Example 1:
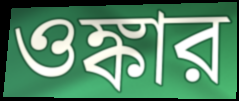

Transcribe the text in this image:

ওঙ্কার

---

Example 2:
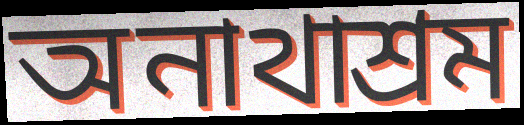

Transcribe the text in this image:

অনাথাশ্রম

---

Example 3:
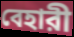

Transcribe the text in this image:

বেহারী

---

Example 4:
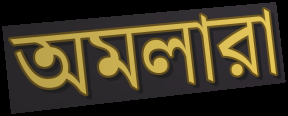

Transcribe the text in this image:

অমলারা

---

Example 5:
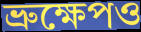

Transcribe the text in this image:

ভ্রুক্ষেপও